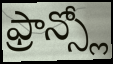
ఫ్రాన్స్లో